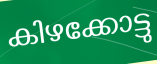
കിഴക്കോട്ടു